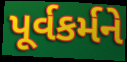
પૂર્વકર્મને